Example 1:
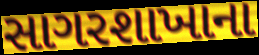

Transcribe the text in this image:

સાગરશાખાના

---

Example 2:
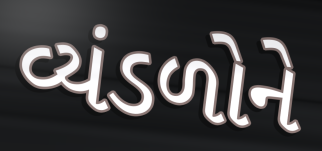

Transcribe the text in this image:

વ્યંડળોને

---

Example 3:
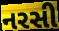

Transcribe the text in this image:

નરસી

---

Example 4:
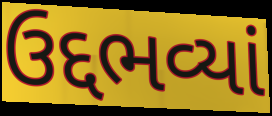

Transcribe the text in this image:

ઉદ્દભવ્યાં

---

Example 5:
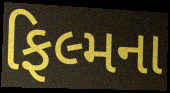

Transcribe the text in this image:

ફિલ્મના